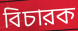
বিচারক